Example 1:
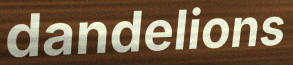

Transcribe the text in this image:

dandelions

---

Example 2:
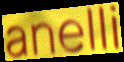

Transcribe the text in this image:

anelli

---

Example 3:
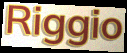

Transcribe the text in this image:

Riggio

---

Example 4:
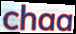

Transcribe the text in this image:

chaa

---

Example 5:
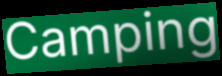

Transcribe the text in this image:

Camping